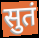
सुतं